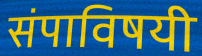
संपाविषयी